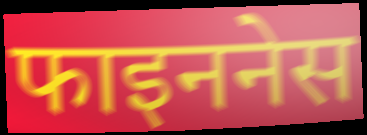
फाइननेस